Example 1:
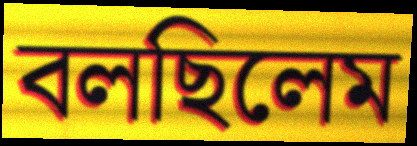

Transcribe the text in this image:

বলছিলেম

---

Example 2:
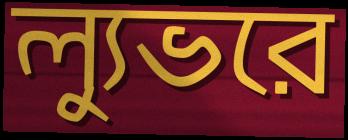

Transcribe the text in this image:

ল্যুভরে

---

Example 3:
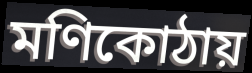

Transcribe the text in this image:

মণিকোঠায়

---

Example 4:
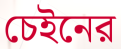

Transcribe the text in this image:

চেইনের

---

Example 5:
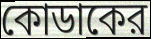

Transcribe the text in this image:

কোডাকের